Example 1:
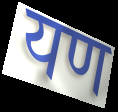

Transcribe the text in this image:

यण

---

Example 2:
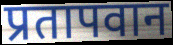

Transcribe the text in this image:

प्रतापवान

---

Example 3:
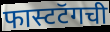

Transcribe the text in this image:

फास्टटॅगची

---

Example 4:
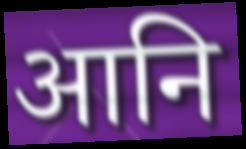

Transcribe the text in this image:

आनि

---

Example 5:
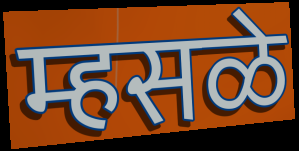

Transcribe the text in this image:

म्हसळे